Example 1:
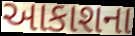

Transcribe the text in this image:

આકાશના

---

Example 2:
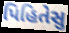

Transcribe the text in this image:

પિહિતેસુ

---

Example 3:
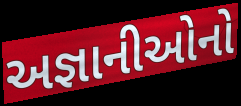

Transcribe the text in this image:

અજ્ઞાનીઓનો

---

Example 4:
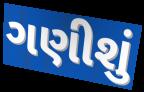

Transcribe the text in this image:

ગણીશું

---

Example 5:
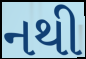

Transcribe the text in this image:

નથી